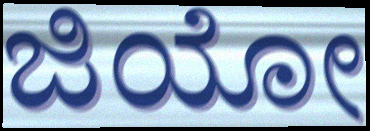
ಜಿಯೋ